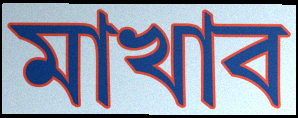
মাখাব